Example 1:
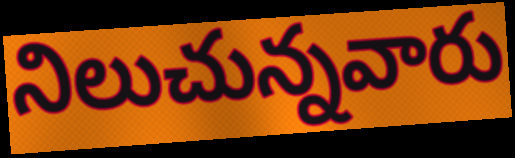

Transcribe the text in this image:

నిలుచున్నవారు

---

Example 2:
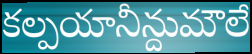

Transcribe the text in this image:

కల్పయానీన్దుమౌలే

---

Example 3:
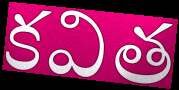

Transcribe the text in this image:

కవిత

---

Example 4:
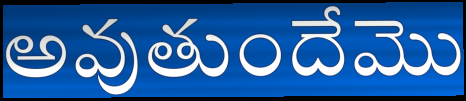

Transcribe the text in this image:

అవుతుందేమొ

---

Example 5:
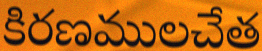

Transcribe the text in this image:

కిరణములచేత